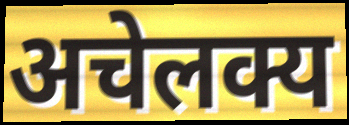
अचेलक्य